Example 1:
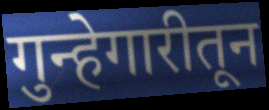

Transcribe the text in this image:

गुन्हेगारीतून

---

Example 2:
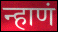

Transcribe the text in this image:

न्हाणं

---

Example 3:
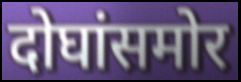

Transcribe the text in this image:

दोघांसमोर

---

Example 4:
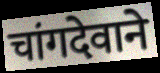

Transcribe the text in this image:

चांगदेवाने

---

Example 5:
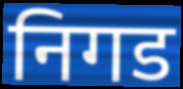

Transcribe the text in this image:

निगड